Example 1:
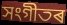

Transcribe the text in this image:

সংগীতৰ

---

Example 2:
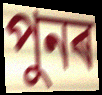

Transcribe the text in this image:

পুনৰ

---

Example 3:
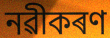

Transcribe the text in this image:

নৱীকৰণ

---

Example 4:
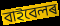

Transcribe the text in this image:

বাইবেলৰ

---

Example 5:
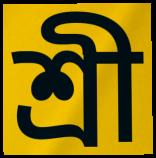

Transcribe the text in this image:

শ্ৰী